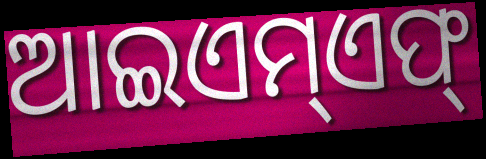
ଆଇଏମ୍ଏଫ୍